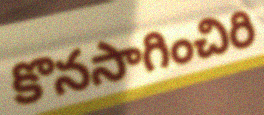
కొనసాగించిరి